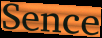
Sence